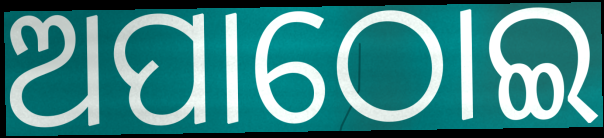
ଅପାଠୋଇ